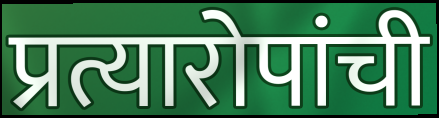
प्रत्यारोपांची